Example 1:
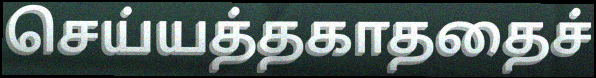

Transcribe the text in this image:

செய்யத்தகாததைச்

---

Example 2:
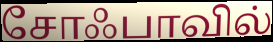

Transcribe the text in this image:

சோஃபாவில்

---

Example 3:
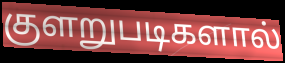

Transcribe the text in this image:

குளறுபடிகளால்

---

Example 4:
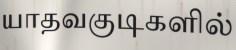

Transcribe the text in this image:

யாதவகுடிகளில்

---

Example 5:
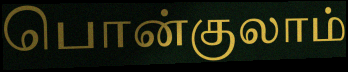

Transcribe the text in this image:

பொன்குலாம்